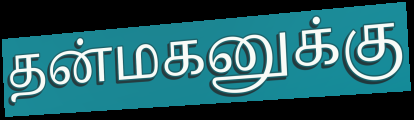
தன்மகனுக்கு